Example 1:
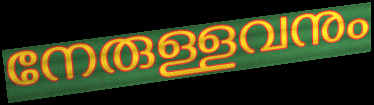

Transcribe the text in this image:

നേരുള്ളവനും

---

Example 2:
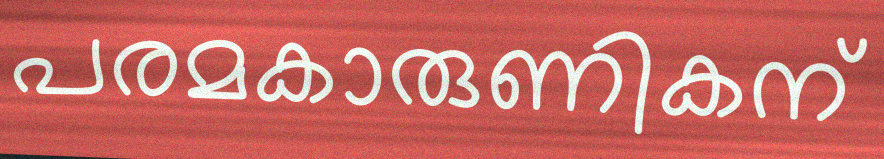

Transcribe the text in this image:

പരമകാരുണികന്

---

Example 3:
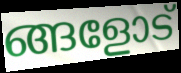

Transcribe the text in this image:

ങ്ങളോട്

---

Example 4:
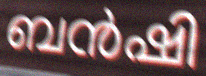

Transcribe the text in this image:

ബൻഷി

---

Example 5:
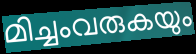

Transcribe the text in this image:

മിച്ചംവരുകയും